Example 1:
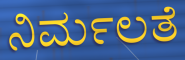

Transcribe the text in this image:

ನಿರ್ಮಲತೆ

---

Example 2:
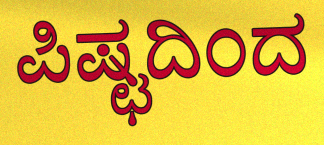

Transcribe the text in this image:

ಪಿಷ್ಟದಿಂದ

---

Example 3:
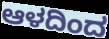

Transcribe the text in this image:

ಆಳದಿಂದ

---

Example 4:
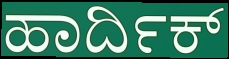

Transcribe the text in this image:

ಹಾರ್ದಿಕ್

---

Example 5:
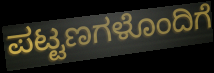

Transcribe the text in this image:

ಪಟ್ಟಣಗಳೊಂದಿಗೆ